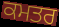
ਕਮਤਰ